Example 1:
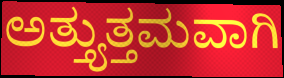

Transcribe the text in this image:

ಅತ್ತ್ಯುತ್ತಮವಾಗಿ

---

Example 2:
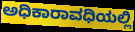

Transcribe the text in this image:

ಅಧಿಕಾರಾವಧಿಯಲ್ಲಿ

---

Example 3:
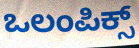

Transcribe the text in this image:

ಒಲಂಪಿಕ್ಸ್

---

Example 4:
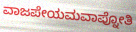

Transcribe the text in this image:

ವಾಜಪೇಯಮವಾಪ್ನೋತಿ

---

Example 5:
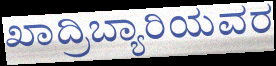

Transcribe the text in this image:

ಖಾದ್ರಿಬ್ಯಾರಿಯವರ